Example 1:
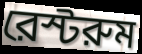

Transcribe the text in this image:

রেস্টরুম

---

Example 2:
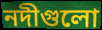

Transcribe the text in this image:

নদীগুলো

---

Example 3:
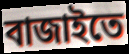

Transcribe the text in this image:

বাজাইতে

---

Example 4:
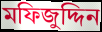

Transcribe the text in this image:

মফিজুদ্দিন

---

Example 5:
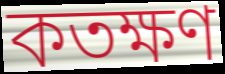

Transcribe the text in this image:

কতক্ষণ